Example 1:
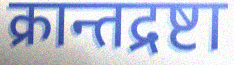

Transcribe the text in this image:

क्रान्तद्रष्टा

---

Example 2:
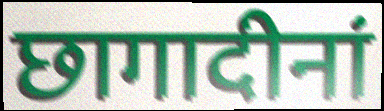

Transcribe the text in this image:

छागादीनां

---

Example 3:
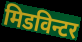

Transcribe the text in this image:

मिडविन्टर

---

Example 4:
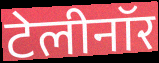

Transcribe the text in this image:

टेलीनॉर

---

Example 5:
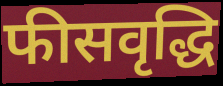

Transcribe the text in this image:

फीसवृद्धि